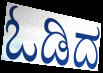
ಓಡಿದ